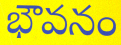
భౌవనం